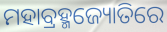
ମହାବ୍ରହ୍ମଜ୍ୟୋତିରେ